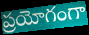
ప్రయోగంగా